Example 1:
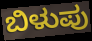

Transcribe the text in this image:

ಬಿಳುಪು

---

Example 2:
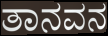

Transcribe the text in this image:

ತಾನವನ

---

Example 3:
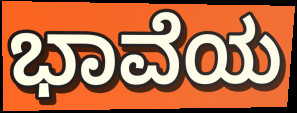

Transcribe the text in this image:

ಭಾವೆಯ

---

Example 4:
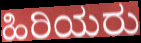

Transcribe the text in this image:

ಹಿರಿಯರು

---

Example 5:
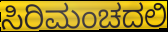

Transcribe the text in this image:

ಸಿರಿಮಂಚದಲಿ